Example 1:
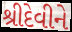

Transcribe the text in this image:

શ્રીદેવીને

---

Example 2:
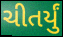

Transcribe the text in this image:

ચીતર્યું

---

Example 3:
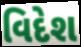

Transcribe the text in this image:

વિદેશ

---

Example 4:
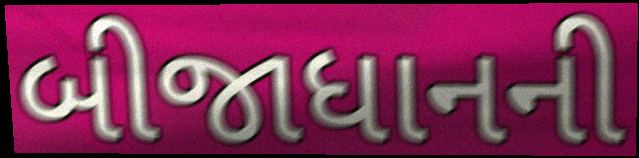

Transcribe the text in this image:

બીજાધાનની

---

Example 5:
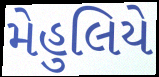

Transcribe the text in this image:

મેહુલિયે